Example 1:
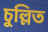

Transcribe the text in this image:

চুল্লিত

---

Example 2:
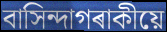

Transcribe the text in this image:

বাসিন্দাগৰাকীয়ে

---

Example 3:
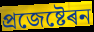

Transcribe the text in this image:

প্ৰজেষ্টেৰন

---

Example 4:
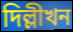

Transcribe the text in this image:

দিল্লীখন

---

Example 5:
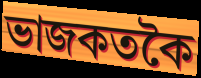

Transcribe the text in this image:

ভাজকতকৈ